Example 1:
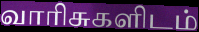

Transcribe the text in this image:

வாரிசுகளிடம்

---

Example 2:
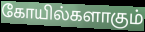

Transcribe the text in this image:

கோயில்களாகும்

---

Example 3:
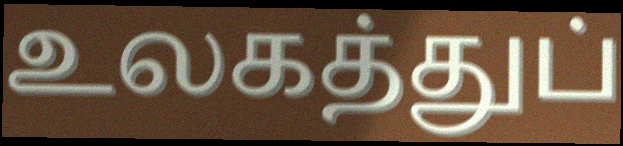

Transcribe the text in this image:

உலகத்துப்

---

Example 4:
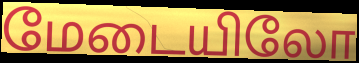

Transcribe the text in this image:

மேடையிலோ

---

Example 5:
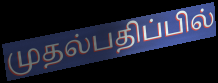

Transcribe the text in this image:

முதல்பதிப்பில்